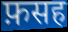
फ़सह